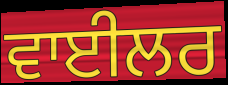
ਵਾਈਲਰ